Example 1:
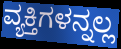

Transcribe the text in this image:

ವ್ಯಕ್ತಿಗಳನ್ನಲ್ಲ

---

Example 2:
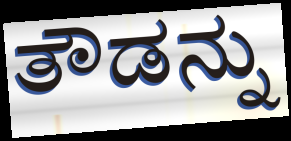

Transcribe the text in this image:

ತೌಡನ್ನು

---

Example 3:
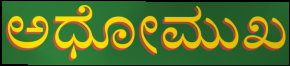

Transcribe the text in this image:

ಅಧೋಮುಖ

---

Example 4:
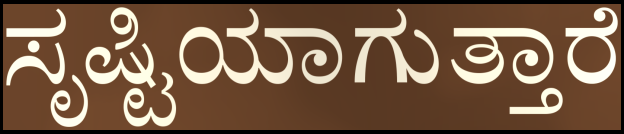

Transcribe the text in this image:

ಸೃಷ್ಟಿಯಾಗುತ್ತಾರೆ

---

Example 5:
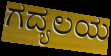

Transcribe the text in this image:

ಗದ್ಯಲಯ